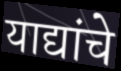
याद्यांचे